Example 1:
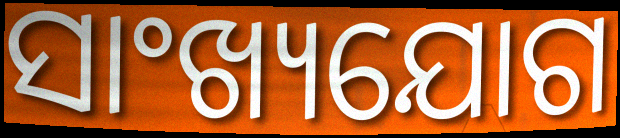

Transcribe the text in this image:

ସାଂଖ୍ଯଯୋଗ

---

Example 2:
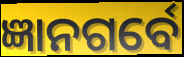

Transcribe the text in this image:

ଜ୍ଞାନଗର୍ବେ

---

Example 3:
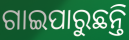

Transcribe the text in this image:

ଗାଇପାରୁଛନ୍ତି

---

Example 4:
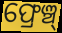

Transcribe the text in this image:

ଫ୍ରେଞ୍ଚ୍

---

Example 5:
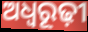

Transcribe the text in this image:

ଅଧ୍ଵରୂଢ଼ୀ